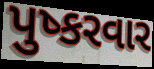
પુષ્કરવાર